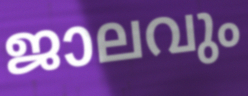
ജാലവും